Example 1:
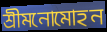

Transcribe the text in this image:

শ্রীমনোমোহন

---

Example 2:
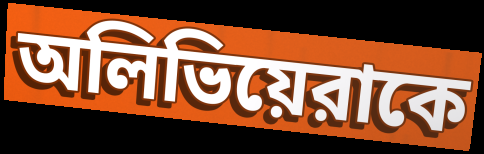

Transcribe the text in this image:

অলিভিয়েরাকে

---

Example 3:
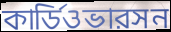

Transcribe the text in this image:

কার্ডিওভারসন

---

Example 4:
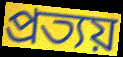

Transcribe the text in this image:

প্রত্যয়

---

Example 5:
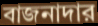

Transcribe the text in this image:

বাজনাদার